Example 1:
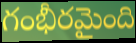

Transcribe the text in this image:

గంభీరమైంది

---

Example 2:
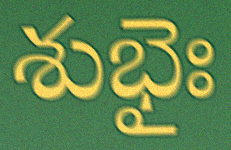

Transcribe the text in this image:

శుభైః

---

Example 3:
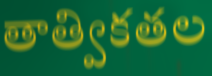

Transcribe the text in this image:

తాత్వికతల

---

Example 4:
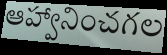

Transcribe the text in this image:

ఆహ్వానించగల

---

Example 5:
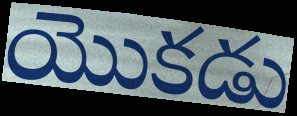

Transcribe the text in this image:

యొకడు